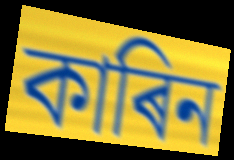
কাৰিন